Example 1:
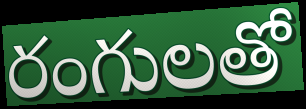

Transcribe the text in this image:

రంగులతో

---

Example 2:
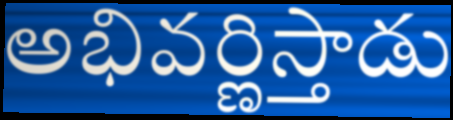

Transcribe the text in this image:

అభివర్ణిస్తాడు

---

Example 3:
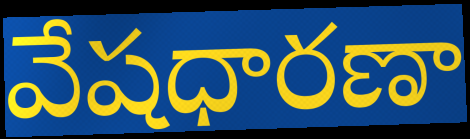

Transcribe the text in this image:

వేషధారణా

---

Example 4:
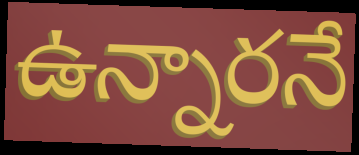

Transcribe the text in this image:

ఉన్నారనే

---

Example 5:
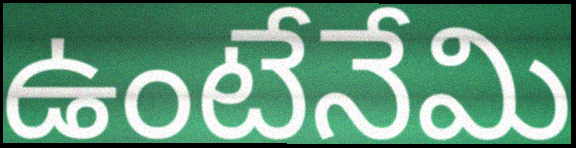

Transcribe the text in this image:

ఉంటేనేమి